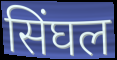
सिंघल